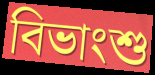
বিভাংশু